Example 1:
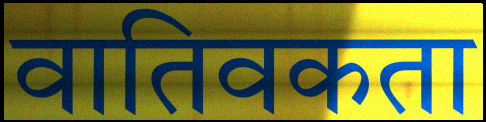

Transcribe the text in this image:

वातिवकता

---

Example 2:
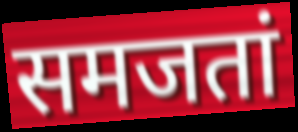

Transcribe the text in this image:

समजतां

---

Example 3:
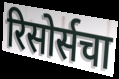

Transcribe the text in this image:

रिसोर्सचा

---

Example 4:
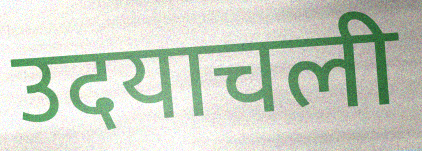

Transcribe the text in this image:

उदयाचली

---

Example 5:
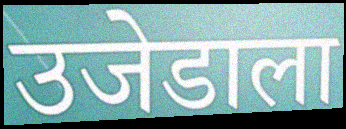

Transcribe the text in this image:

उजेडाला